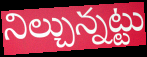
నిల్చున్నట్టు